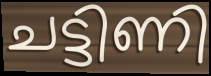
ചട്ടിണി